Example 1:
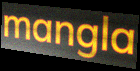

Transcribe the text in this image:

mangla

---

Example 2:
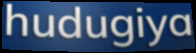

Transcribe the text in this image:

hudugiya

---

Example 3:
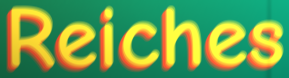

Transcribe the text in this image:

Reiches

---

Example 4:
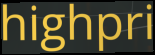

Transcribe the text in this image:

highpri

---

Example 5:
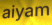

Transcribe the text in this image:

aiyam